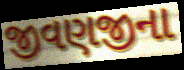
જીવણજીના